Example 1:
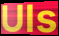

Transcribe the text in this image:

UIs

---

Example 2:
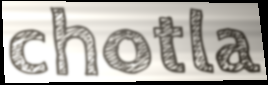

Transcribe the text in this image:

chotla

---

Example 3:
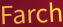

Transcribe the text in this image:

Farch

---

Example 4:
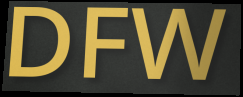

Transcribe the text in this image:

DFW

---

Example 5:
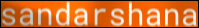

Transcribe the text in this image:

sandarshana